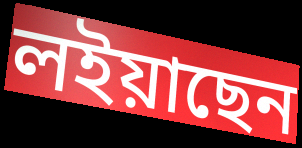
লইয়াছেন